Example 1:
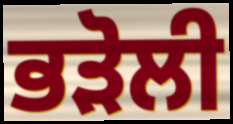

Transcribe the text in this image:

ਭੜੋਲੀ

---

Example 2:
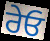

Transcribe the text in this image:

ਰੇਓ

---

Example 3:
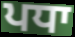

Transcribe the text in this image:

ਪਧਾ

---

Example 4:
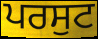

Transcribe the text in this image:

ਪਰਸੁਟ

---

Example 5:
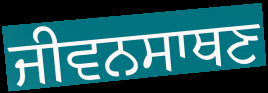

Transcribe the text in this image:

ਜੀਵਨਸਾਥਣ